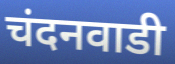
चंदनवाडी